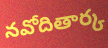
నవోదితార్క